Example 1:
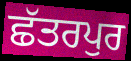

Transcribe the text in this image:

ਛੱਤਰਪੁਰ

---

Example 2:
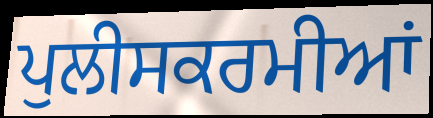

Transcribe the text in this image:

ਪੁਲੀਸਕਰਮੀਆਂ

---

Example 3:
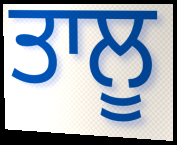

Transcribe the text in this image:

ਤਾਲੂ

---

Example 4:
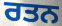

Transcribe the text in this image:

ਰਤਨ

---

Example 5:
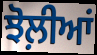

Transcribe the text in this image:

ਝੋਲ਼ੀਆਂ